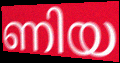
ണിയ